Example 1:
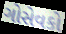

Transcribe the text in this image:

ગોસેવકો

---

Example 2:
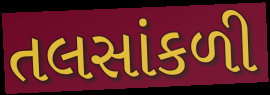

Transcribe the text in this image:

તલસાંકળી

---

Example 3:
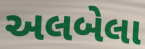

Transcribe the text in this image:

અલબેલા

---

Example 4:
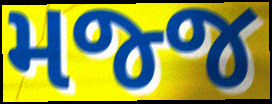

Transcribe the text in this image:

મજ્જ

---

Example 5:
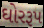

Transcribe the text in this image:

ઘોરરૂપ